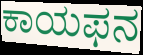
ಕಾಯಫನ